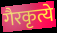
गैरकृत्ये